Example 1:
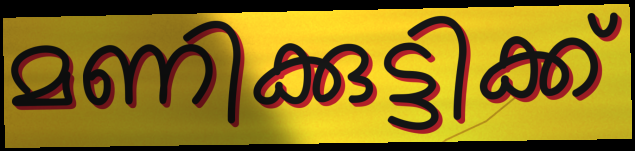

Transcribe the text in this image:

മണിക്കുട്ടിക്ക്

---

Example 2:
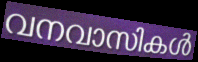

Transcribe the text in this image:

വനവാസികൾ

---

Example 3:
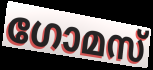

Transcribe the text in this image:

ഗോമസ്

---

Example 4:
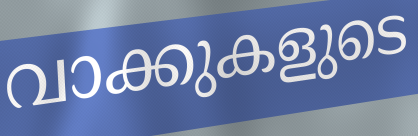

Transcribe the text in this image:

വാക്കുകളുടെ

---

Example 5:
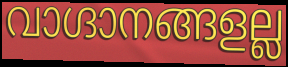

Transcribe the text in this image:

വാഗ്ദാനങ്ങളല്ല